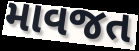
માવજત